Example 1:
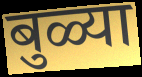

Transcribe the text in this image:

बुळ्या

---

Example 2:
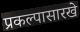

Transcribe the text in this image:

प्रकल्पासारखे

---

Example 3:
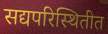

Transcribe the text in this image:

सद्यपरिस्थितीत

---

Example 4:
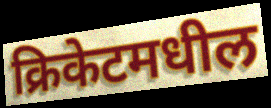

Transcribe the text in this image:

क्रिकेटमधील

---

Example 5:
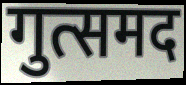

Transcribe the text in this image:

गुत्समद